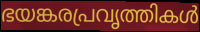
ഭയങ്കരപ്രവൃത്തികൾ